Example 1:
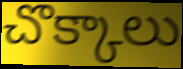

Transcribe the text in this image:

చొక్కాలు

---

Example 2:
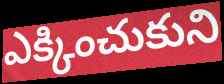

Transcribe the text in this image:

ఎక్కించుకుని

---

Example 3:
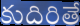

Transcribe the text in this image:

కుదిరితే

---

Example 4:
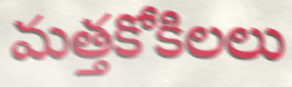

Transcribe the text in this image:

మత్తకోకిలలు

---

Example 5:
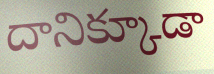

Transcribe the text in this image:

దానిక్కూడా